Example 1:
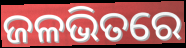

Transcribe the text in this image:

ଜଳଭିତରେ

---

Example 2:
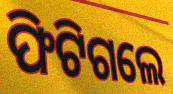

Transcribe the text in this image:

ଫିଟିଗଲେ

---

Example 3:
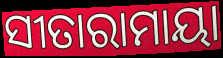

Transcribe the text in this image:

ସୀତାରାମାୟା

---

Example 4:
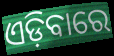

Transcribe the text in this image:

ଏଡ଼ିବାରେ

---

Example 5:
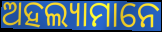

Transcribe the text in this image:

ଅହଲ୍ୟାମାନେ